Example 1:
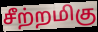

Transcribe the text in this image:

சீற்றமிகு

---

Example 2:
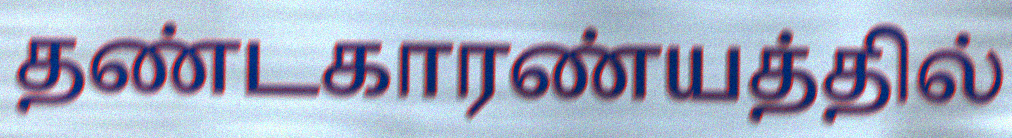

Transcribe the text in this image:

தண்டகாரண்யத்தில்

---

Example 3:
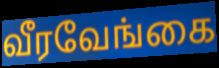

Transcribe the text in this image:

வீரவேங்கை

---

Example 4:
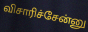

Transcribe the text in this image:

விசாரிச்சேன்னு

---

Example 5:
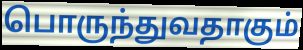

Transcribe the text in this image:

பொருந்துவதாகும்